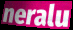
neralu